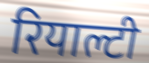
रियाल्टी